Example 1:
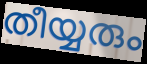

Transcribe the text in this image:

തീയ്യരും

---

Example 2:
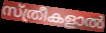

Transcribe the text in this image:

സ്ത്രീകളാൽ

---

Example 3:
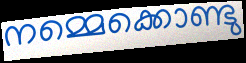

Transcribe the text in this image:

നമ്മെക്കൊണ്ടു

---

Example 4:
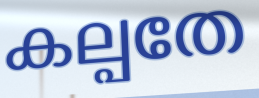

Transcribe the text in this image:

കല്പതേ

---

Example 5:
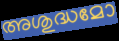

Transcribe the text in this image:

അശുദ്ധമോ